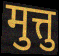
मुत्तु